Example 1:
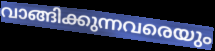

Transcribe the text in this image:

വാങ്ങിക്കുന്നവരെയും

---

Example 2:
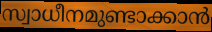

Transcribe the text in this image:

സ്വാധീനമുണ്ടാക്കാൻ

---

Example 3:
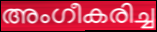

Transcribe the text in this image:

അംഗീകരിച്ച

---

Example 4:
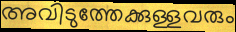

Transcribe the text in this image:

അവിടുത്തേക്കുള്ളവരും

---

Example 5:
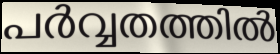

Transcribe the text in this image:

പർവ്വതത്തിൽ